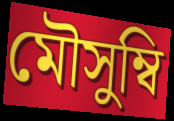
মৌসুম্বি